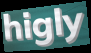
higly